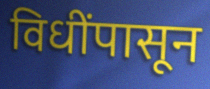
विधींपासून